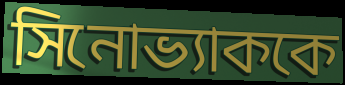
সিনোভ্যাককে